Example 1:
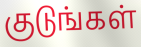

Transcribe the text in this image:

குடுங்கள்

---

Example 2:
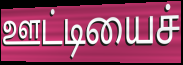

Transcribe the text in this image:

ஊட்டியைச்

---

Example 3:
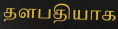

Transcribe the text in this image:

தளபதியாக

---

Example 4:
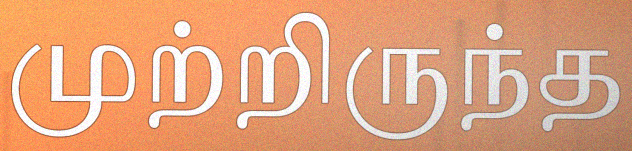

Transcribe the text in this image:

முற்றிருந்த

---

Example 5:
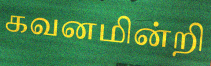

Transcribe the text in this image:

கவனமின்றி